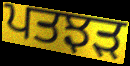
ਪਤਝੜ